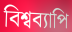
বিশ্বব্যাপি